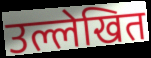
उल्‍लेखित